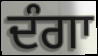
ਦੰਗਾ